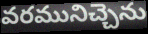
వరమునిచ్చెను